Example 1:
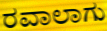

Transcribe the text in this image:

ರವಾಲಾಗು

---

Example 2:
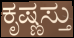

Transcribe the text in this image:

ಕೃಷ್ಣಸ್ತು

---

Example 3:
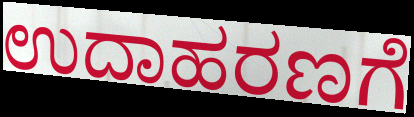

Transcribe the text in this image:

ಉದಾಹರಣಗೆ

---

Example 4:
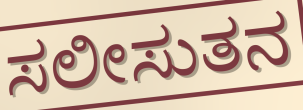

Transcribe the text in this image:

ಸಲೀಸುತನ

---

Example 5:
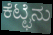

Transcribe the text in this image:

ಕೆಟ್ಟೆನು